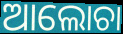
ଆଲୋଚା